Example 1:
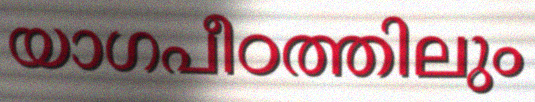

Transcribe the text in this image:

യാഗപീഠത്തിലും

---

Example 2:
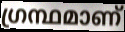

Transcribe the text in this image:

ഗ്രന്ഥമാണ്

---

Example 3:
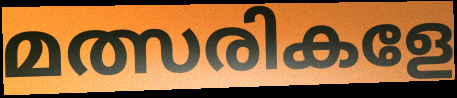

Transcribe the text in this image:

മത്സരികളേ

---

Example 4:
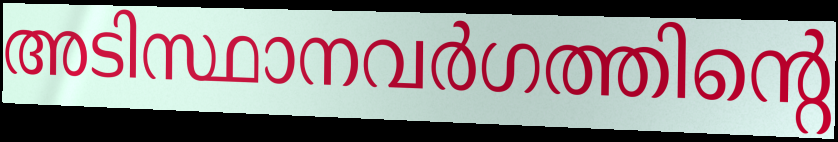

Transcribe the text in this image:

അടിസ്ഥാനവർഗത്തിന്റെ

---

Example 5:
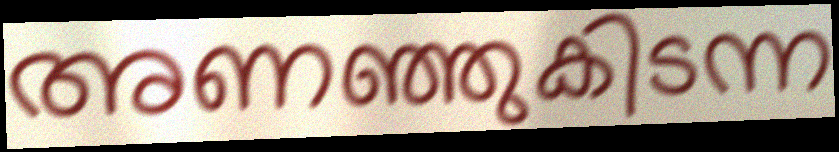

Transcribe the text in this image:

അണഞ്ഞുകിടന്ന